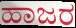
ಹಾಜರ